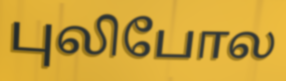
புலிபோல